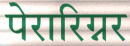
पेरारिग्नर